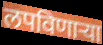
लपविणाऱ्या